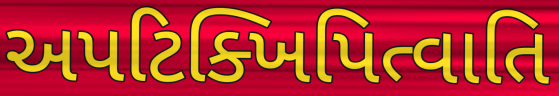
અપટિક્ખિપિત્વાતિ